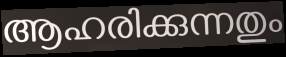
ആഹരിക്കുന്നതും